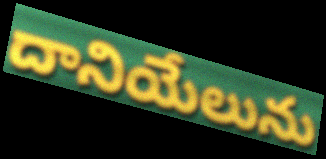
దానియేలును